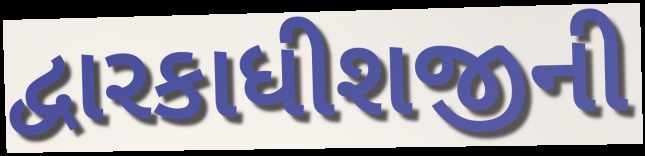
દ્વારકાધીશજીની